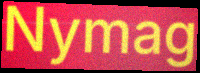
Nymag